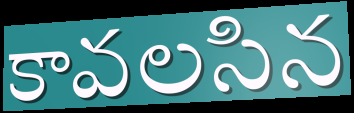
కావలసిన